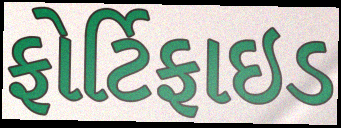
ફોર્ટિફાઇડ